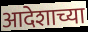
आदेशाच्या